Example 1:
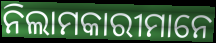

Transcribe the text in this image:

ନିଲାମକାରୀମାନେ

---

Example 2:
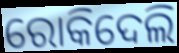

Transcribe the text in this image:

ରୋକିଦେଲି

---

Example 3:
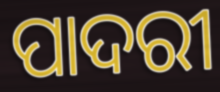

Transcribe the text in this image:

ପାଦରୀ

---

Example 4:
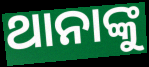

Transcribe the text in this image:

ଥାନାଙ୍କୁ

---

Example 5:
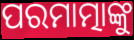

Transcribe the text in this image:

ପରମାତ୍ମାଙ୍କୁ